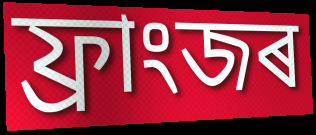
ফ্ৰাংজৰ